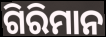
ଗିରିମାନ